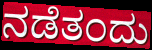
ನಡೆತಂದು